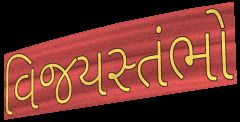
વિજયસ્તંભો